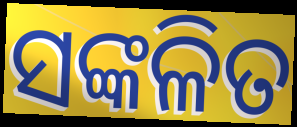
ସଙ୍କଳିତ